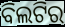
ବିଲଟିର